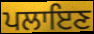
ਪਲਾਇਣ